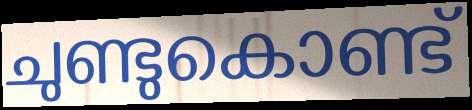
ചുണ്ടുകൊണ്ട്